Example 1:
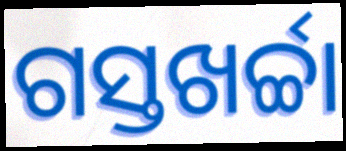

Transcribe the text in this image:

ଗସ୍ତଖର୍ଚ୍ଚା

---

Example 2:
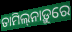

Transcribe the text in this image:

ତାମିଲ୍‌ନାଡ଼ୁରେ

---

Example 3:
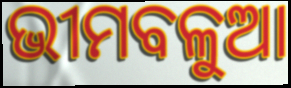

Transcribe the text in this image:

ଭୀମବଳୁଆ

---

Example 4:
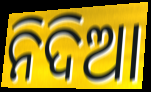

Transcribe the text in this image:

ନିଦିଆ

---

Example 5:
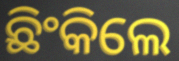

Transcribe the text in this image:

ଛିଂକିଲେ